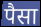
पैसा